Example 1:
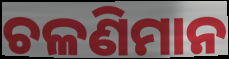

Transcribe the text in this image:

ଚଳଣିମାନ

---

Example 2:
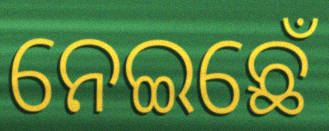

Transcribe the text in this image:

ନେଇଛେଁ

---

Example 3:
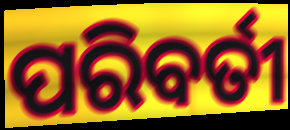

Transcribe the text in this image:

ପରିବର୍ତୀ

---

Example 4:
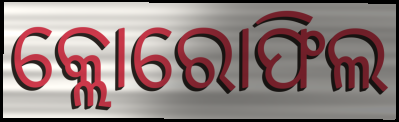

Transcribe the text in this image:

କ୍ଲୋରୋଫିଲ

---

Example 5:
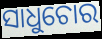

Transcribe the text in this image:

ସାଧୁଚୋର